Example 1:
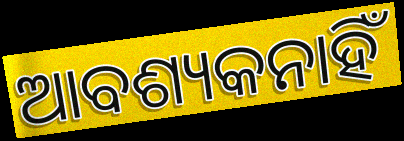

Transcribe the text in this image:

ଆବଶ୍ୟକନାହିଁ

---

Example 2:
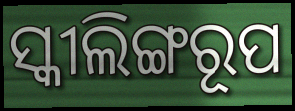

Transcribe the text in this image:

ସ୍କୀଲିଙ୍ଗରୂପ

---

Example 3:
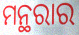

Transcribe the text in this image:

ମନ୍ଥରାର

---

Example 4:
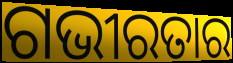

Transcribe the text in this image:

ଗଭୀରତାର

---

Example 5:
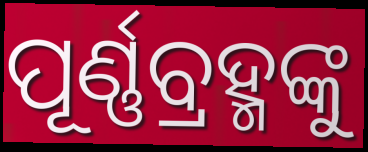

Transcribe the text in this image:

ପୂର୍ଣ୍ଣବ୍ରହ୍ମଙ୍କୁ